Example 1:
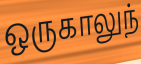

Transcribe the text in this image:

ஒருகாலுந்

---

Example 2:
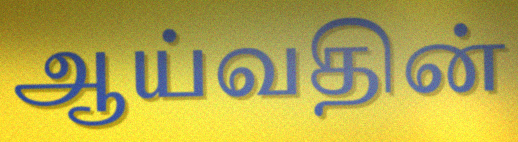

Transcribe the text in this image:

ஆய்வதின்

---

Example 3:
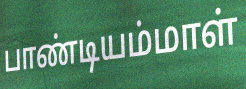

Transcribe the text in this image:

பாண்டியம்மாள்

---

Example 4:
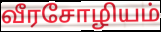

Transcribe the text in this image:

வீரசோழியம்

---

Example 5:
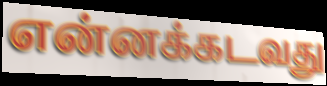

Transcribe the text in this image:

என்னக்கடவது